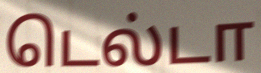
டெல்டா